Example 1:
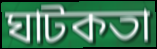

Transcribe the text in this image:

ঘাটকতা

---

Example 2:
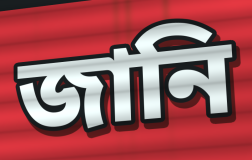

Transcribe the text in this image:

জানি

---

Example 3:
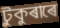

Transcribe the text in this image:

টুকুৰাৰে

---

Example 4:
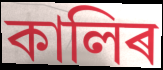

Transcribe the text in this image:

কালিৰ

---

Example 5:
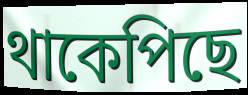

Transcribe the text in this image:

থাকেপিছে